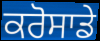
ਕਰੋਸਾਡੇ